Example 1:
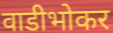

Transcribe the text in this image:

वाडीभोकर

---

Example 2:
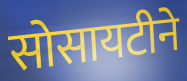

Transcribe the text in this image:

सोसायटीने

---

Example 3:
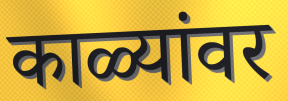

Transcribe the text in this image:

काळ्यांवर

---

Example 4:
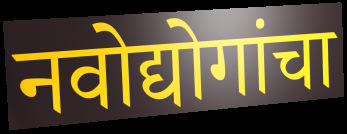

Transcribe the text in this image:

नवोद्योगांचा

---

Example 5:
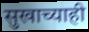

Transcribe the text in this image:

सुखाच्याही